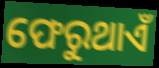
ଫେରୁଥାଏଁ